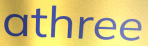
athree